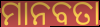
ମାନବତା